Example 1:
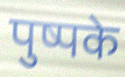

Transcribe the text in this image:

पुष्पके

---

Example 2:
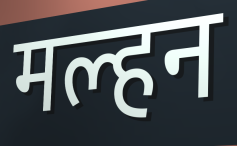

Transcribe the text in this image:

मल्हन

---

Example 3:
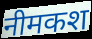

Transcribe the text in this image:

नीमकश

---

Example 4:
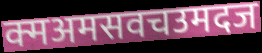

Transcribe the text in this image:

क्मअमसवचउमदज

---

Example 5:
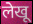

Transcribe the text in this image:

लेखू